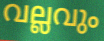
വല്ലവും